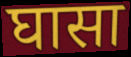
घासा